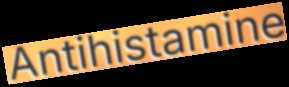
Antihistamine